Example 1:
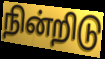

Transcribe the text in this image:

நின்றிடு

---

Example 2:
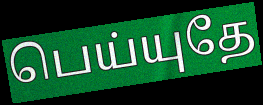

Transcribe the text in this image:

பெய்யுதே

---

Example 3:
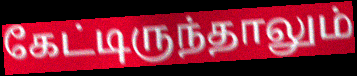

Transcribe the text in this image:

கேட்டிருந்தாலும்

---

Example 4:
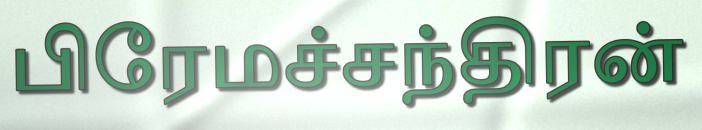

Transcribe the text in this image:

பிரேமச்சந்திரன்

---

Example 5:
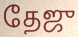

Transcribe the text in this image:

தேஜு